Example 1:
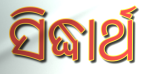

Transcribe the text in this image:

ସିଦ୍ଧାର୍ଥ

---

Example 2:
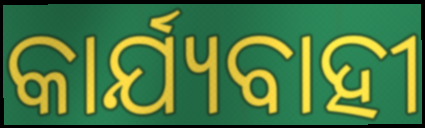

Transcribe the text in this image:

କାର୍ଯ୍ୟବାହୀ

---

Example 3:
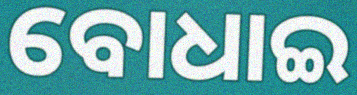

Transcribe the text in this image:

ବୋଧାଇ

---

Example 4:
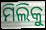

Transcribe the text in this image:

ମିଲିକୁ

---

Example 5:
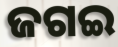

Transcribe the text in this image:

ଜଗଇ